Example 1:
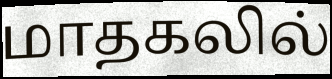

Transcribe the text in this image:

மாதகலில்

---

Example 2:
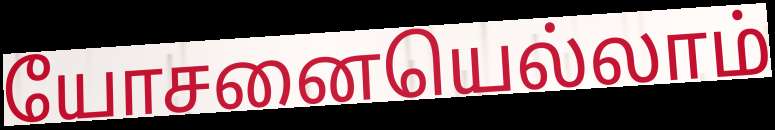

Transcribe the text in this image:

யோசனையெல்லாம்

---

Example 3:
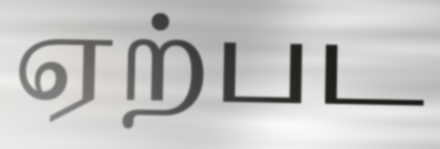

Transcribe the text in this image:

ஏற்பட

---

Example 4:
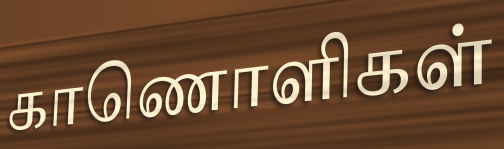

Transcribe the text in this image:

காணொளிகள்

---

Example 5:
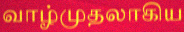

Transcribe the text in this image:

வாழ்முதலாகிய